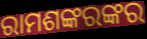
ରାମଶଙ୍କରଙ୍କର